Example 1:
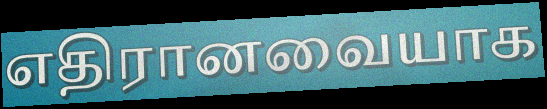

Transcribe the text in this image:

எதிரானவையாக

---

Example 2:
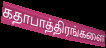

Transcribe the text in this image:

கதாபாத்திரங்களை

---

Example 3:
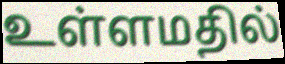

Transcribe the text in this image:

உள்ளமதில்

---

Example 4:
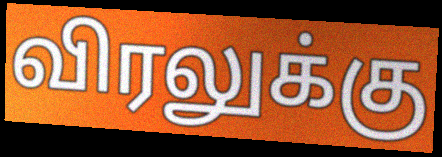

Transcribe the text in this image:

விரலுக்கு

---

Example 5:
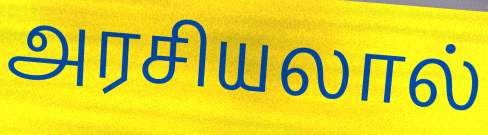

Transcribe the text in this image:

அரசியலால்